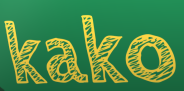
kako